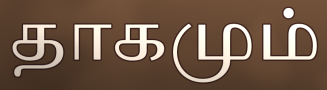
தாகமும்